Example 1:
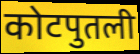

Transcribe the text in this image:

कोटपुतली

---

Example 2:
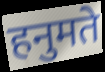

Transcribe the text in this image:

हनुमते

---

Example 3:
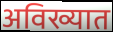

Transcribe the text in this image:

अविख्यात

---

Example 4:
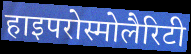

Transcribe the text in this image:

हाइपरोस्मोलैरिटी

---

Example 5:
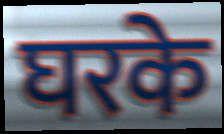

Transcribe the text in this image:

घरके